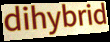
dihybrid